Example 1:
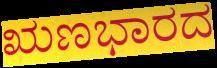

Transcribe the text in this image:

ಋಣಭಾರದ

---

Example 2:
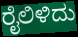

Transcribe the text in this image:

ರೈಲಿಳಿದು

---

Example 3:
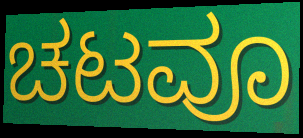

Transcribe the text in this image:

ಚಟವೂ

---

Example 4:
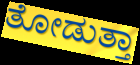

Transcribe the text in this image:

ತೋಡುತ್ತಾ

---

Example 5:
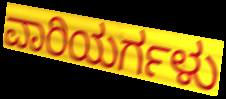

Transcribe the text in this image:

ವಾರಿಯರ್ಗಳು